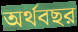
অর্থবছর